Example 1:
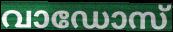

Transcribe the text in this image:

വാഡോസ്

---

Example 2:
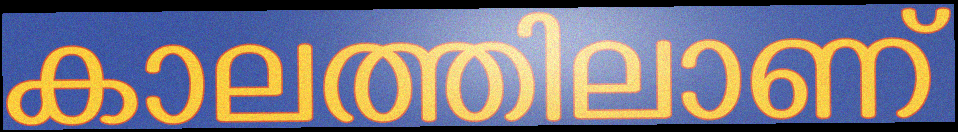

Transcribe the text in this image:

കാലത്തിലാണ്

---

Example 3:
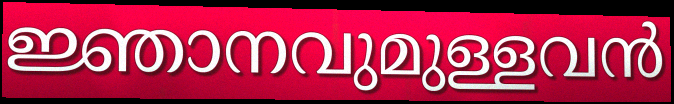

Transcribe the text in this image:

ജ്ഞാനവുമുള്ളവൻ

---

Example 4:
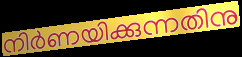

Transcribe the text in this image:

നിർണയിക്കുന്നതിനു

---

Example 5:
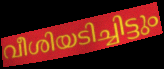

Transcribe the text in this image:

വീശിയടിച്ചിട്ടും